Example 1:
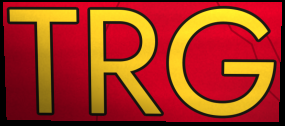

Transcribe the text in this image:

TRG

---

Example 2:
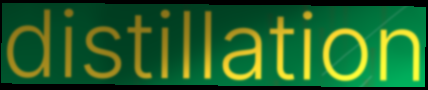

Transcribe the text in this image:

distillation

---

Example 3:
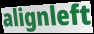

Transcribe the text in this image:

alignleft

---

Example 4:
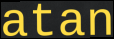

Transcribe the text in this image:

atan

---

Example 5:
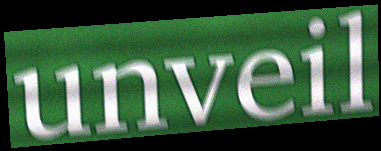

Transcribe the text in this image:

unveil